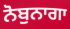
ਨੋਬੁਨਾਗਾ